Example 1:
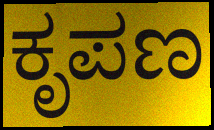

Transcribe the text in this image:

ಕೃಪಣ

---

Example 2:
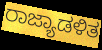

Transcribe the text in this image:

ರಾಜ್ಯಾಡಳಿತ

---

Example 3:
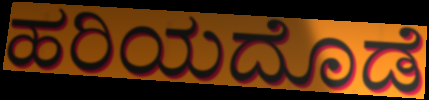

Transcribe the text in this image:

ಹರಿಯದೊಡೆ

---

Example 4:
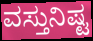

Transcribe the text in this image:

ವಸ್ತುನಿಷ್ಟ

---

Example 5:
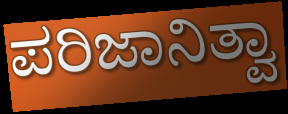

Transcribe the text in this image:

ಪರಿಜಾನಿತ್ವಾ